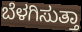
ಬೆಳಗಿಸುತ್ತಾ